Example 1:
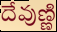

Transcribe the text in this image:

దేవుణ్ణి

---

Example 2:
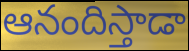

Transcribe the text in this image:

ఆనందిస్తాడా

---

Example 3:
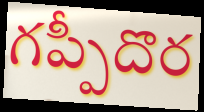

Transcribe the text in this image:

గప్పీదొర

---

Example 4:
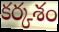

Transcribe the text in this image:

కర్కశం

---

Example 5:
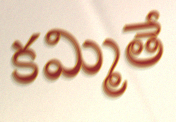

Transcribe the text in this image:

కమ్మితే